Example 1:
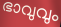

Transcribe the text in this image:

ഭാവുവും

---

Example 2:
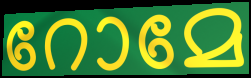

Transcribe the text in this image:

റോമേ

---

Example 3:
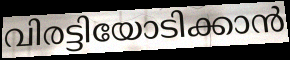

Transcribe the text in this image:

വിരട്ടിയോടിക്കാൻ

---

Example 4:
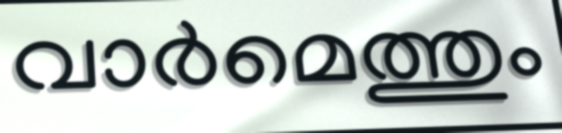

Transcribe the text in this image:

വാർമെത്തും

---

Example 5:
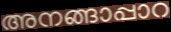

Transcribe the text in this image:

അനങ്ങാപ്പാറ